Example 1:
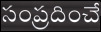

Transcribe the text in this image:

సంప్రదించే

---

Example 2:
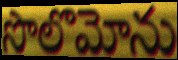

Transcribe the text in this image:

సొలొమోను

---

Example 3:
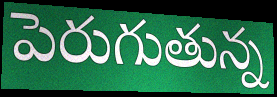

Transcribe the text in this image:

పెరుగుతున్న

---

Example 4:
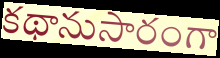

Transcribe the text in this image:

కథానుసారంగా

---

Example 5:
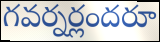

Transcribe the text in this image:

గవర్నర్లందరూ